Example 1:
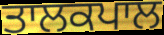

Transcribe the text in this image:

ਤਾਲਕਪਾਲ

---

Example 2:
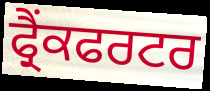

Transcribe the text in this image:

ਫ੍ਰੈਂਕਫਰਟਰ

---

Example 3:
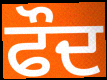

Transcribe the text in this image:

ਫੌਦ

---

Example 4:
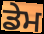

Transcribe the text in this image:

ਡੇਮ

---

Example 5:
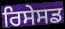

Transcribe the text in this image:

ਰਿਸੇਸਡ